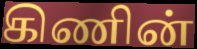
கிணின்